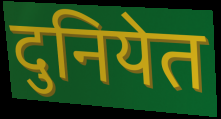
दुनियेत